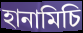
হানামিচি